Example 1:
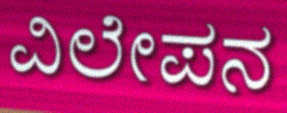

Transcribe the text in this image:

ವಿಲೇಪನ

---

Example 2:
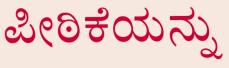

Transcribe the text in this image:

ಪೀಠಿಕೆಯನ್ನು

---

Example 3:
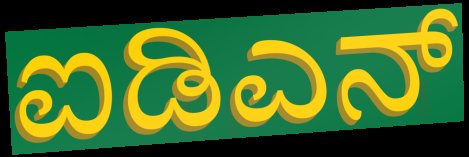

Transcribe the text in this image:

ಐಡಿಎನ್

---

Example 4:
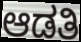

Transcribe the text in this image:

ಆಡತಿ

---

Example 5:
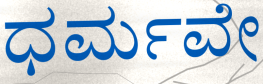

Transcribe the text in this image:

ಧರ್ಮವೇ